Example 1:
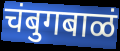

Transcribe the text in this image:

चंबुगबाळं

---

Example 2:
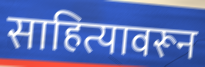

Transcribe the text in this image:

साहित्यावरून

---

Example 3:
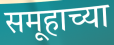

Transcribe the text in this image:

समूहाच्या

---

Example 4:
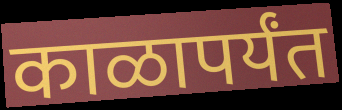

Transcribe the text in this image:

काळापर्यंत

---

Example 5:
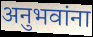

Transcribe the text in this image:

अनुभवांना